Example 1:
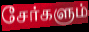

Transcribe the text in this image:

சேர்களும்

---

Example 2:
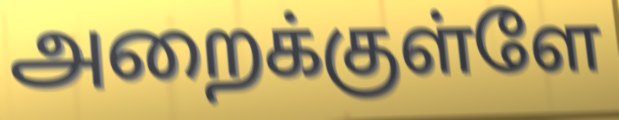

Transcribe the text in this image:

அறைக்குள்ளே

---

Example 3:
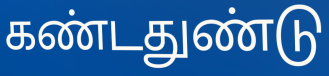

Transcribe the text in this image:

கண்டதுண்டு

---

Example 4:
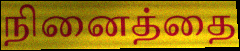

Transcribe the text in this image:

நினைத்தை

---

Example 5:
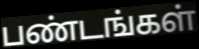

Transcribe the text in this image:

பண்டங்கள்